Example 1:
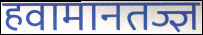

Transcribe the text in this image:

हवामानतज्ज्ञ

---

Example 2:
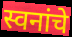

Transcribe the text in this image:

स्वनांचे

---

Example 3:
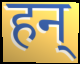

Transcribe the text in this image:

हन्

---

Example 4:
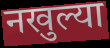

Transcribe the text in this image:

नखुल्या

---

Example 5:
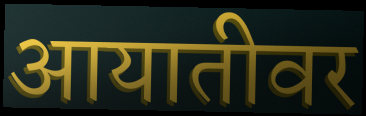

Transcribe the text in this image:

आयातीवर